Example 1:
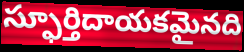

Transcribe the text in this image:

స్ఫూర్తిదాయకమైనది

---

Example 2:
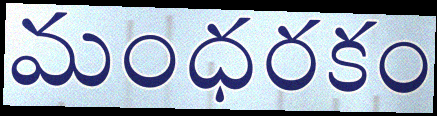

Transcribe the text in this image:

మంధరకం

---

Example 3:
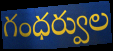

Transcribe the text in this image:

గంధర్వుల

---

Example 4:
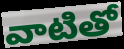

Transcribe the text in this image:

వాటితో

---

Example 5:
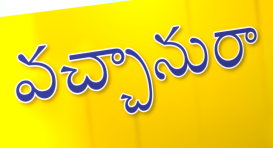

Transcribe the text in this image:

వచ్చానురా